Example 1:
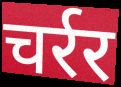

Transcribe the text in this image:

चर्रर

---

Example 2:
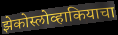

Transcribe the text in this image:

झेकोस्लोव्हाकियाचा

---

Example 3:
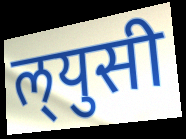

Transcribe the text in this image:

ल्युसी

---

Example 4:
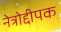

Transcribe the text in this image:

नेत्रोद्दीपक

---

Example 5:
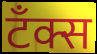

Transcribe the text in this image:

टँक्स